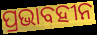
ପ୍ରଭାବହୀନ